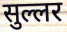
सुल्लर